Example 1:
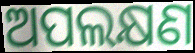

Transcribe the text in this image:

ଅପଲକ୍ଷଣ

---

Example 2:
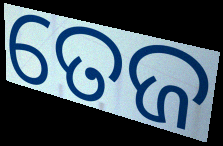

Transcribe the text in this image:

ତେଜ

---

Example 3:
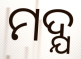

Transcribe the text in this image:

ମଦ୍ଯ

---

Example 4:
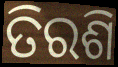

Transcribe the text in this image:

ତିରଶି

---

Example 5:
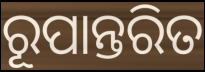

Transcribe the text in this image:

ରୂପାନ୍ତରିତ